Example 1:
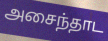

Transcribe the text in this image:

அசைந்தாட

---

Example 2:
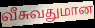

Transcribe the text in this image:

வீசுவதுமான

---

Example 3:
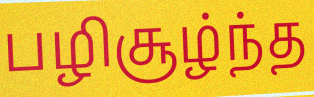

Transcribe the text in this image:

பழிசூழ்ந்த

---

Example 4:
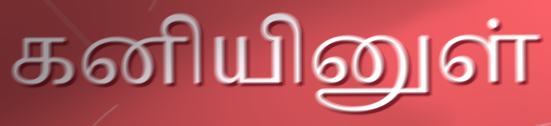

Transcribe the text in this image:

கனியினுள்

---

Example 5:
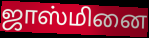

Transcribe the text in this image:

ஜாஸ்மினை